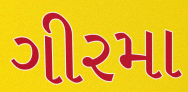
ગીરમા